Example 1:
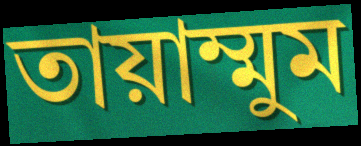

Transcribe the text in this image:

তায়াম্মুম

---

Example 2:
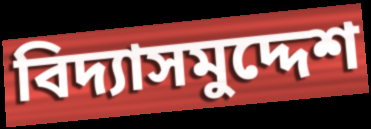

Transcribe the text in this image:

বিদ্যাসমুদ্দেশ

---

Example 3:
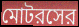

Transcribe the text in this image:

মোটরসের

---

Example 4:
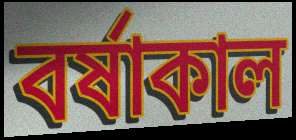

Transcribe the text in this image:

বর্ষাকাল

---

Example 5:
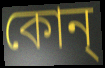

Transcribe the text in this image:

কোন্